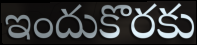
ఇందుకొరకు